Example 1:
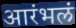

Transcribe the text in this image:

आरंभलं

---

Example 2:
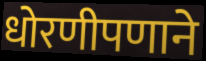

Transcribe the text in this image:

धोरणीपणाने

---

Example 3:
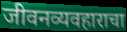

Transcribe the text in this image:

जीवनव्यवहाराचा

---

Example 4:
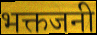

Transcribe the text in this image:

भक्तजनी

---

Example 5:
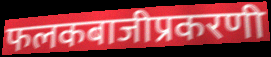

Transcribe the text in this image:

फलकबाजीप्रकरणी